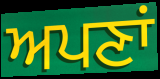
ਅਪਣਾਂ